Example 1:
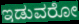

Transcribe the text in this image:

ಇಡುವರೋ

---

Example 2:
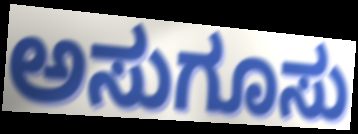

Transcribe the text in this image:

ಅಸುಗೂಸು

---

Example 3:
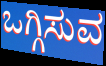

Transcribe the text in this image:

ಒಗ್ಗಿಸುವ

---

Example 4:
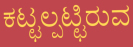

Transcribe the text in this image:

ಕಟ್ಟಲ್ಪಟ್ಟಿರುವ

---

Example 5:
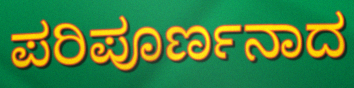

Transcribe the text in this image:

ಪರಿಪೂರ್ಣನಾದ